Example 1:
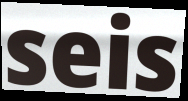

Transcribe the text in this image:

seis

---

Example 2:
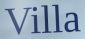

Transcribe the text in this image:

Villa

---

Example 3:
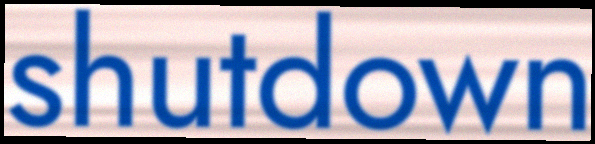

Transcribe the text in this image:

shutdown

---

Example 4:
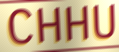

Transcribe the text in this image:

CHHU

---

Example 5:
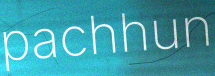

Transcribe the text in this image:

pachhun